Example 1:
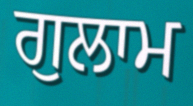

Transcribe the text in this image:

ਗੁਲਾਮ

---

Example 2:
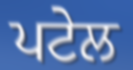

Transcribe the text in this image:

ਪਟੇਲ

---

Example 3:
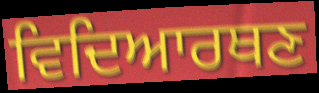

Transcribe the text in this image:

ਵਿਦਿਆਰਥਣ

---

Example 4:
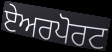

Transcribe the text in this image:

ਏਅਰਪੋਰਟ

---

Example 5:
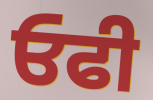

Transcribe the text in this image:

ਓਫੀ